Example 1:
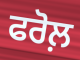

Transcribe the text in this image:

ਫਰੋਲ਼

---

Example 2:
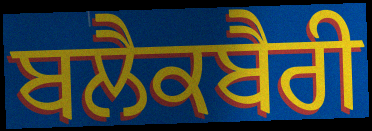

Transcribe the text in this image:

ਬਲੈਕਬੈਰੀ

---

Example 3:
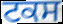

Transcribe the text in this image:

ਟਕਸ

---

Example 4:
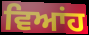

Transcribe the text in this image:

ਵਿਆਂਹ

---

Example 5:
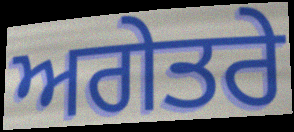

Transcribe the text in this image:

ਅਗੇਤਰੇ